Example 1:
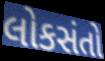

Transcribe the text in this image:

લોકસંતો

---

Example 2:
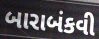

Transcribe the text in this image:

બારાબંકવી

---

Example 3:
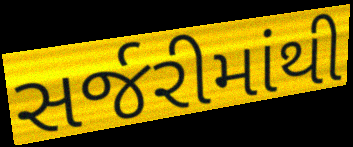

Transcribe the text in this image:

સર્જરીમાંથી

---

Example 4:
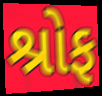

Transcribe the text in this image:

શ્રોફ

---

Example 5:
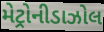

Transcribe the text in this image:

મેટ્રોનીડાઝોલ